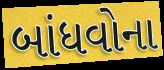
બાંધવોના